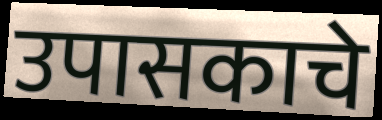
उपासकाचे